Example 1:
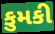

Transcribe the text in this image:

કુમકી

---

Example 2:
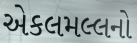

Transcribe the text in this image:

એકલમલ્લનો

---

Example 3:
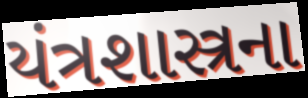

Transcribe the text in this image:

યંત્રશાસ્ત્રના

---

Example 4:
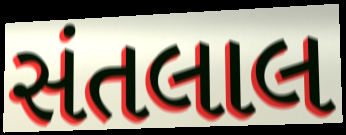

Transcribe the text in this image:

સંતલાલ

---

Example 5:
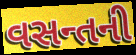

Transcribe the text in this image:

વસન્તની